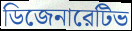
ডিজেনারেটিভ